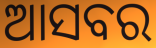
ଆସବର